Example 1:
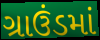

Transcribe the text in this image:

ગ્રાઉંડમાં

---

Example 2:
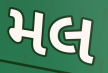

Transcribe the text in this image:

મલ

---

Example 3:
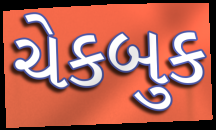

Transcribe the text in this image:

ચેકબુક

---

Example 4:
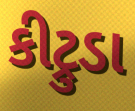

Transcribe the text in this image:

કીટ્રુડા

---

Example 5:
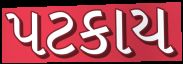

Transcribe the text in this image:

પટકાય